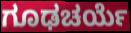
ಗೂಢಚರ್ಯೆ